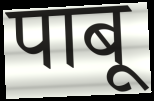
पाबू